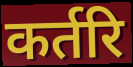
कर्तरि